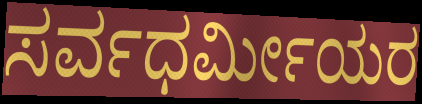
ಸರ್ವಧರ್ಮೀಯರ